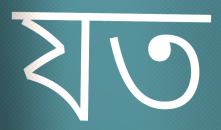
যত